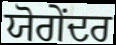
ਯੋਗੇਂਦਰ